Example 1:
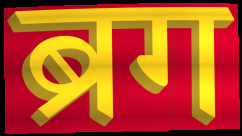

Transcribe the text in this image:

ब्रग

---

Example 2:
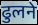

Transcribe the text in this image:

ढुलने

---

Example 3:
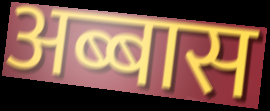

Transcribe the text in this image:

अब्बास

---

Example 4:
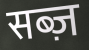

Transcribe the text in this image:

सब्ज़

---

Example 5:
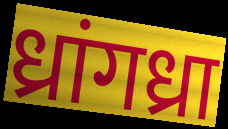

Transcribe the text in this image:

ध्रांगध्रा